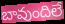
బావుందిలే